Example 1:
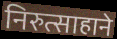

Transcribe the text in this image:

निरुत्साहाने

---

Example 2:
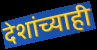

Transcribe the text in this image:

देशांच्याही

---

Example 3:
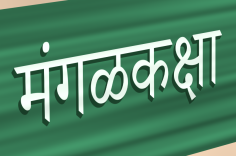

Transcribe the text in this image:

मंगळकक्षा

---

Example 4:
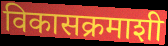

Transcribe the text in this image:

विकासक्रमाशी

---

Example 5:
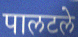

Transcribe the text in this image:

पालटले